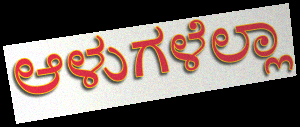
ಆಳುಗಳೆಲ್ಲಾ